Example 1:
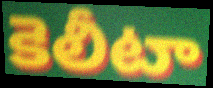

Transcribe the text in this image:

కెలీటా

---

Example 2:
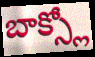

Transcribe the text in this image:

బాక్స్లో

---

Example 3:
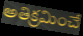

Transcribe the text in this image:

అతిక్రమించే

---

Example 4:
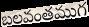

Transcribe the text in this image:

బలవంతముగ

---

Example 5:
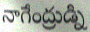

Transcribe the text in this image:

నాగేంద్రుడ్ని